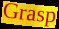
Grasp